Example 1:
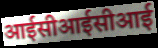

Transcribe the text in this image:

आईसीआईसीआई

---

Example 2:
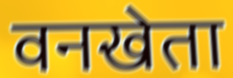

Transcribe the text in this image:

वनखेता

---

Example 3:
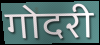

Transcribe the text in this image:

गोदरी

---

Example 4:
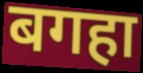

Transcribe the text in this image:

बगहा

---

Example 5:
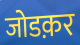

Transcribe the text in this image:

जोडक़र